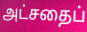
அட்சதைப்